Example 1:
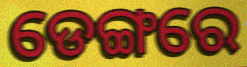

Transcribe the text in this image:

ଡେଙ୍ଗରେ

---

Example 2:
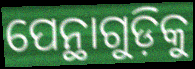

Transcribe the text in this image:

ପେନ୍ଥାଗୁଡ଼ିକୁ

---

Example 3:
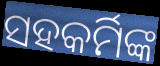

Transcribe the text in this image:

ସହକର୍ମିଙ୍କ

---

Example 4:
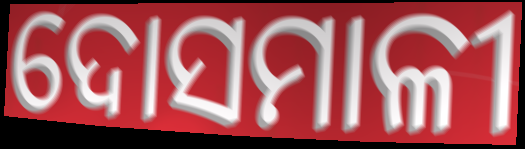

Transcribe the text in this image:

ଦୋସମାଳୀ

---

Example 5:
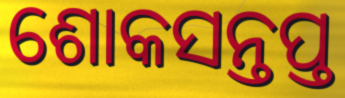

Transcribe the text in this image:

ଶୋକସନ୍ତପ୍ତ